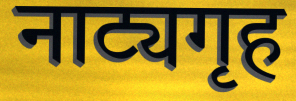
नाट्यगृह